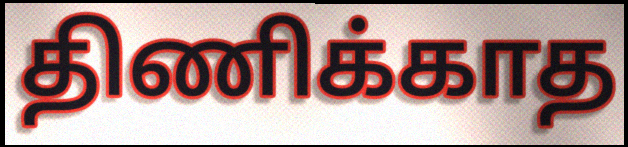
திணிக்காத